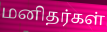
மனிதர்கள்